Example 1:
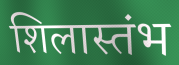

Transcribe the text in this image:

शिलास्तंभ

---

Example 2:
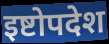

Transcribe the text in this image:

इष्टोपदेश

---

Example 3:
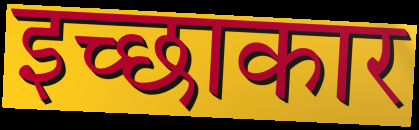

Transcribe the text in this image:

इच्छाकार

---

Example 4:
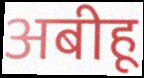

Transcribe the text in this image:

अबीहू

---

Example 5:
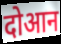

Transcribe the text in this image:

दोआन